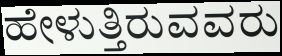
ಹೇಳುತ್ತಿರುವವರು